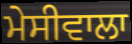
ਮੇਸੀਵਾਲਾ